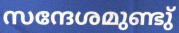
സന്ദേശമുണ്ടു്